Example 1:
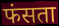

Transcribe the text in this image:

फंसता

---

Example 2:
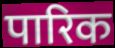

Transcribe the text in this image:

पारिक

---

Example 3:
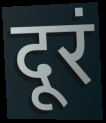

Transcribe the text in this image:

दूरं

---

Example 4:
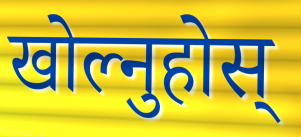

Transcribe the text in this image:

खोल्नुहोस्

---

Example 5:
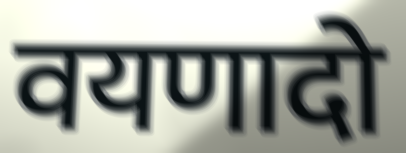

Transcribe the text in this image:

वयणादो